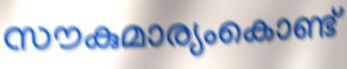
സൗകുമാര്യംകൊണ്ട്